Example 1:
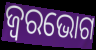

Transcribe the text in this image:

ଜ୍ୱରଭୋଗ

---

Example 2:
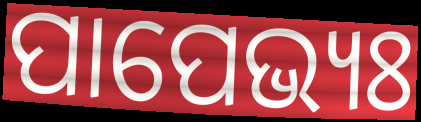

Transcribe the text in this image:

ପାପେଭ୍ୟଃ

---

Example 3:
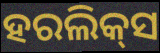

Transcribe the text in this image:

ହରଲିକ୍‌ସ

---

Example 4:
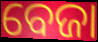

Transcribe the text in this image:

ବେଜା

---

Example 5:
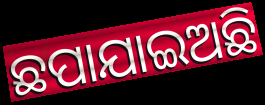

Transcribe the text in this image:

ଛପାଯାଇଅଛି